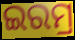
ଇରମ୍ର